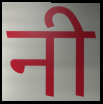
नी